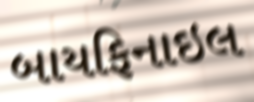
બાયફિનાઇલ